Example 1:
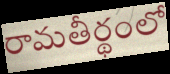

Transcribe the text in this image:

రామతీర్థంలో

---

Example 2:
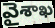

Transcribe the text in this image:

వైశాఖ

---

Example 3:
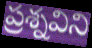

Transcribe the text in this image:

ప్రశ్నవిని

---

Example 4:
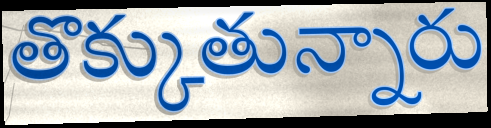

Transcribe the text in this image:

తొక్కుతున్నారు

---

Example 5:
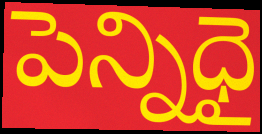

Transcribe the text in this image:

పెన్నిధై